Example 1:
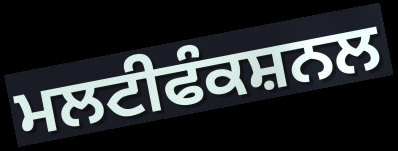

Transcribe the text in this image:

ਮਲਟੀਫੰਕਸ਼ਨਲ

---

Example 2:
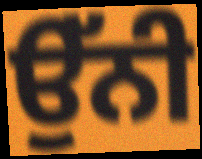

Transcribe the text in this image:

ਉੱਨੀ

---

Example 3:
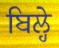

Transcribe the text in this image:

ਬਿਲ੍ਹੇ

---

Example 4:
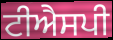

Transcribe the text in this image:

ਟੀਐਸਪੀ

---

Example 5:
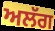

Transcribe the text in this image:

ਅਲੱਗ